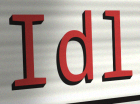
Idl